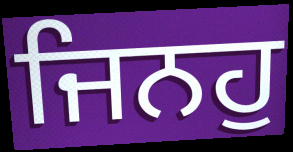
ਜਿਨਹੁ